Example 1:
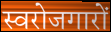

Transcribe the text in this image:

स्वरोजगारों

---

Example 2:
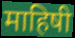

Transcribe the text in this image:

माहिषी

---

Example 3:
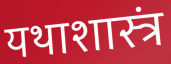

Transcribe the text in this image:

यथाशास्त्रं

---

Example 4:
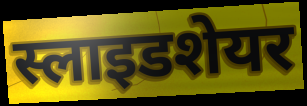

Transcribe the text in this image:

स्लाइडशेयर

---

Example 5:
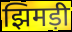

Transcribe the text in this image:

झिमड़ी